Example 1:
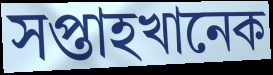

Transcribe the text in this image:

সপ্তাহখানেক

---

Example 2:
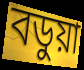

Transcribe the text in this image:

বডুয়া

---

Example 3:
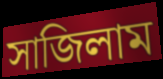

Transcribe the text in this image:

সাজিলাম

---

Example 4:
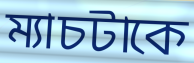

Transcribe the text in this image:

ম্যাচটাকে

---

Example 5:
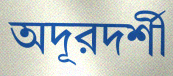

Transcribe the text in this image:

অদূরদর্শী